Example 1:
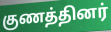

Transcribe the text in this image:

குணத்தினர்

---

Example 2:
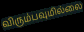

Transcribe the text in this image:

விரும்பவுமில்லை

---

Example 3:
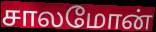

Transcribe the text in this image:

சாலமோன்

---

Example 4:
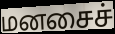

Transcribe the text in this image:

மனசைச்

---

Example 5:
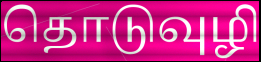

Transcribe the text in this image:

தொடுவுழி